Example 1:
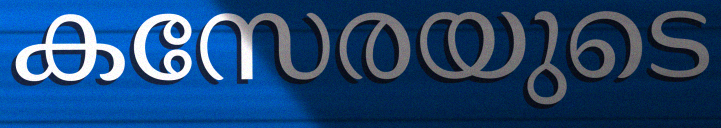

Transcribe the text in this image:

കസേരയുടെ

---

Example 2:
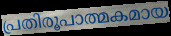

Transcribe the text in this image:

പ്രതിരൂപാത്മകമായ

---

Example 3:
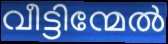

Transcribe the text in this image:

വീട്ടിന്മേൽ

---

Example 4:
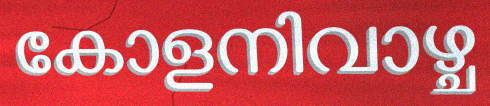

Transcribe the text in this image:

കോളനിവാഴ്ച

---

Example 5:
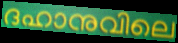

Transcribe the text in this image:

ദഹാനുവിലെ